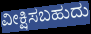
ವೀಕ್ಷಿಸಬಹುದು